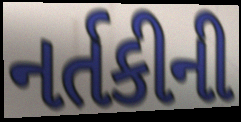
નર્તકીની